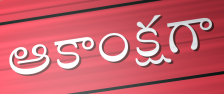
ఆకాంక్షగా